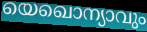
യെഖൊന്യാവും